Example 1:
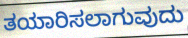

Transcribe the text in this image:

ತಯಾರಿಸಲಾಗುವುದು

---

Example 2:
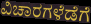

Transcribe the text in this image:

ವಿಚಾರಗಳೆಡೆಗೆ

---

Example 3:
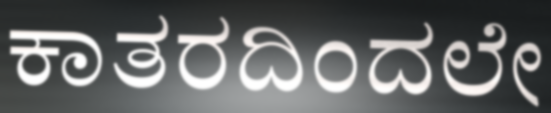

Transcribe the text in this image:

ಕಾತರದಿಂದಲೇ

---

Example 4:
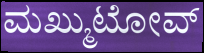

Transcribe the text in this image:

ಮಖ್ಮುಟೋವ್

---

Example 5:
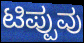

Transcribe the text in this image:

ಟಿಪ್ಪುವು